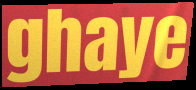
ghaye